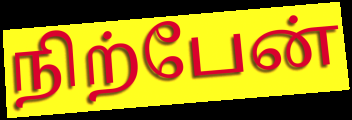
நிற்பேன்